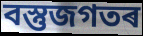
বস্তুজগতৰ